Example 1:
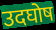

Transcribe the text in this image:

उदघोष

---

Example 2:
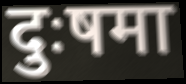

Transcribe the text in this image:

दुःषमा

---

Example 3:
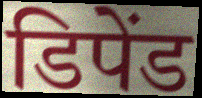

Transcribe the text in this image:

डिपेंड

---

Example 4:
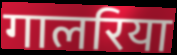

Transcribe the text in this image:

गालरिया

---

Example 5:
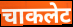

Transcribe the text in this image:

चाकलेट